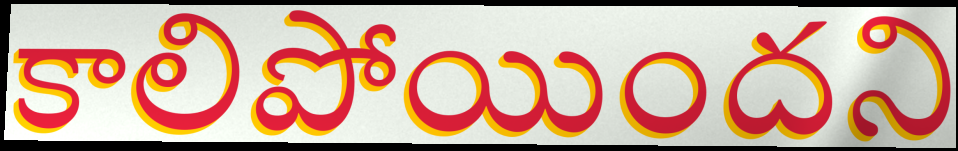
కాలిపోయిందని